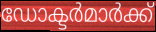
ഡോക്ടർമാർക്ക്